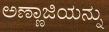
ಅಣ್ಣಾಜಿಯನ್ನು